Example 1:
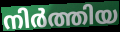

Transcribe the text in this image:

നിർത്തിയ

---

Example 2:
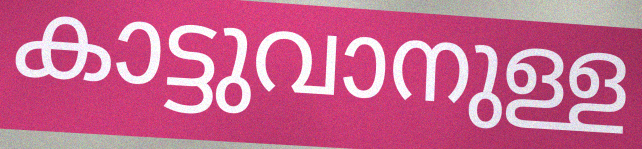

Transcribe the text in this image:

കാട്ടുവാനുള്ള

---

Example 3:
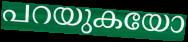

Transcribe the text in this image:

പറയുകയോ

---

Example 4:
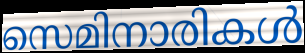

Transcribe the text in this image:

സെമിനാരികൾ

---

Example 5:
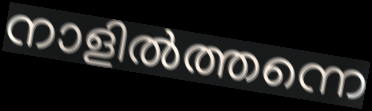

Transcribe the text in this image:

നാളിൽത്തന്നെ